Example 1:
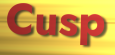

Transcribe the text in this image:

Cusp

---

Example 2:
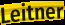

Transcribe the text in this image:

Leitner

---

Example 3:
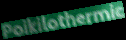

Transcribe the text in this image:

Poikilothermic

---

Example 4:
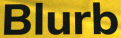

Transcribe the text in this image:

Blurb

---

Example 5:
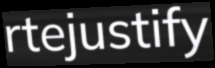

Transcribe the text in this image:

rtejustify